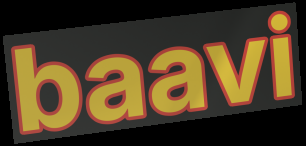
baavi